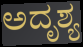
ಅದೃಶ್ಯ